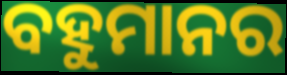
ବହୁମାନର